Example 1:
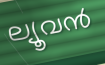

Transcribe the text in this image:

ല്യൂവൻ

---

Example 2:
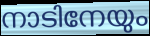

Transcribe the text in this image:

നാടിനേയും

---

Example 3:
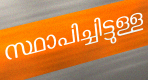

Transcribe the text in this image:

സ്ഥാപിച്ചിട്ടുള്ള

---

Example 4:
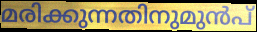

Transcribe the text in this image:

മരിക്കുന്നതിനുമുൻപ്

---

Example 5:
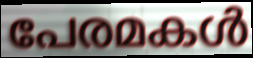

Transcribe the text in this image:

പേരമകൾ